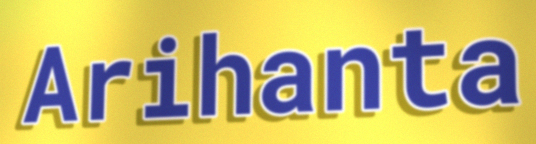
Arihanta